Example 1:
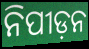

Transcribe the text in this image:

ନିପୀଡ଼ନ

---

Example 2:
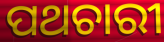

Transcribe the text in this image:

ପଥଚାରୀ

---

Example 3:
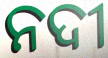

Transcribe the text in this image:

ନଦୀ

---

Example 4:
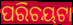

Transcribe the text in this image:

ପରିଚୟଟା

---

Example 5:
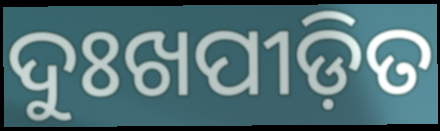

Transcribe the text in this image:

ଦୁଃଖପୀଡ଼ିତ